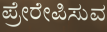
ಪ್ರೇರೇಪಿಸುವ